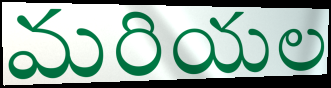
మరియల